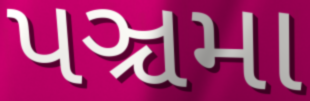
પઞ્ચમા